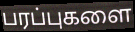
பரப்புகளை